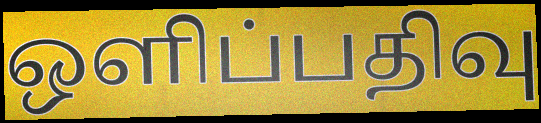
ஒளிப்பதிவு